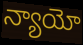
న్యాయో